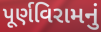
પૂર્ણવિરામનું